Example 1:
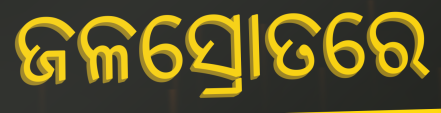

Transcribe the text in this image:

ଜଳସ୍ରୋତରେ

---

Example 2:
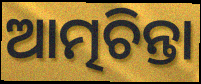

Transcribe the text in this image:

ଆତ୍ମଚିନ୍ତା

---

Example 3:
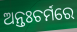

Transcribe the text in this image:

ଅନ୍ତଃଚର୍ମରେ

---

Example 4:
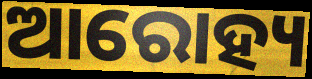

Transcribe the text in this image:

ଆରୋହ୍ୟ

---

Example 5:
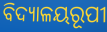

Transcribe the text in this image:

ବିଦ୍ୟାଳୟରୂପୀ